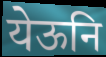
येऊनि